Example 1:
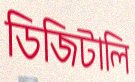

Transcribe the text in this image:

ডিজিটালি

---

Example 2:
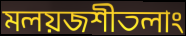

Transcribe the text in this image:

মলয়জশীতলাং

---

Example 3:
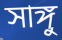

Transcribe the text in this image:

সাঙ্গু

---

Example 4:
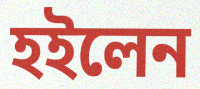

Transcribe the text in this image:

হইলেন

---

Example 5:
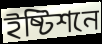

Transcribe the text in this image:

ইষ্টিশনে